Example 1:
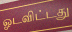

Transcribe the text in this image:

ஓடவிட்டது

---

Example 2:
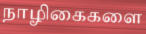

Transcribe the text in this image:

நாழிகைகளை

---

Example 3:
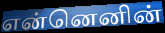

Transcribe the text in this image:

என்னெனின்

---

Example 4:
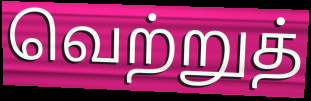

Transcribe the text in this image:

வெற்றுத்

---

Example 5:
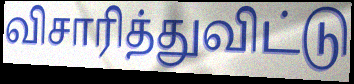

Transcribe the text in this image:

விசாரித்துவிட்டு